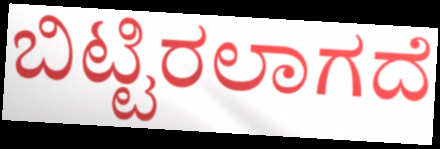
ಬಿಟ್ಟಿರಲಾಗದೆ